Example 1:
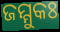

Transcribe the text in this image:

ଜମ୍ମୁକଃ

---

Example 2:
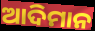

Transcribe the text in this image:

ଆଦିମାନ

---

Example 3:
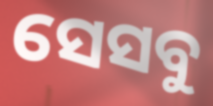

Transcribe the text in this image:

ସେସବୁ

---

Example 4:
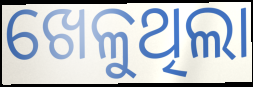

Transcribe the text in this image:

ଖେଳୁଥିଲା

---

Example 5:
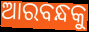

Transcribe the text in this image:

ଆରବନ୍ଧକୁ